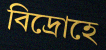
বিদ্ৰোহে